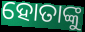
ହୋତାଙ୍କୁ